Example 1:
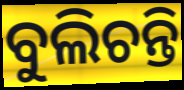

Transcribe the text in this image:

ବୁଲିଚନ୍ତି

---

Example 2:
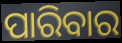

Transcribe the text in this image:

ପାରିବାର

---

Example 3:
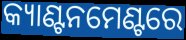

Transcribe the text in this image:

କ୍ୟାଣ୍ଟନମେଣ୍ଟରେ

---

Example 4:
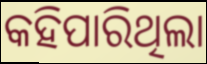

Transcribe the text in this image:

କହିପାରିଥିଲା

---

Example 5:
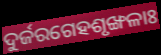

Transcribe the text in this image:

ଦୁର୍ଜରଗେହଶୃଙ୍ଖଳାଃ